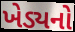
ખેડ્યનો